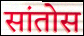
सांतोस